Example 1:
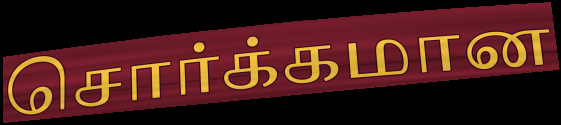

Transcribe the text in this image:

சொர்க்கமான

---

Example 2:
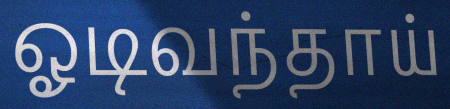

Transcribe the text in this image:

ஓடிவந்தாய்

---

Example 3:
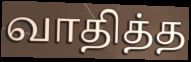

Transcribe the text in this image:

வாதித்த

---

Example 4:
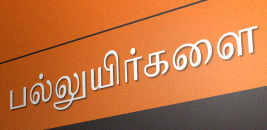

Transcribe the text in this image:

பல்லுயிர்களை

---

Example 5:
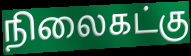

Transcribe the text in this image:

நிலைகட்கு